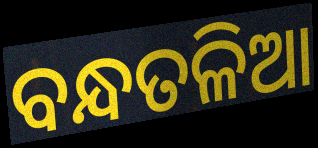
ବନ୍ଧତଳିଆ